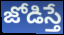
జోడిస్తే